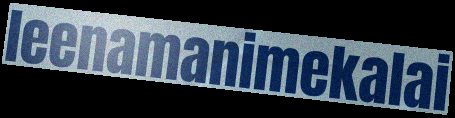
leenamanimekalai